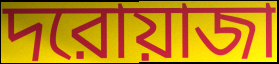
দরোয়াজা